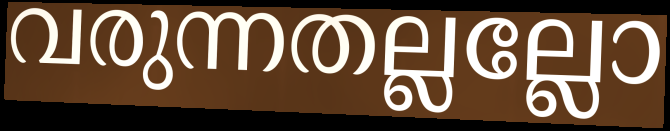
വരുന്നതല്ലല്ലോ